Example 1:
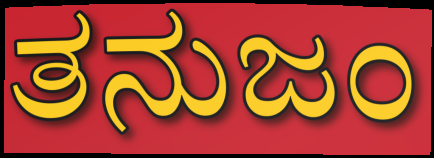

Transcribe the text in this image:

ತನುಜಂ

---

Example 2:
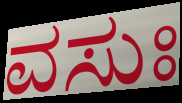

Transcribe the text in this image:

ವಸುಃ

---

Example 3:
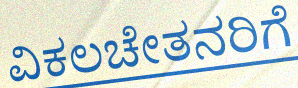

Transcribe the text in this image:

ವಿಕಲಚೇತನರಿಗೆ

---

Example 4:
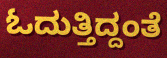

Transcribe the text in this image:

ಓದುತ್ತಿದ್ದಂತೆ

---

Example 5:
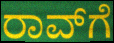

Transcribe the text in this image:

ರಾವ್‌ಗೆ